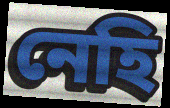
নেহি